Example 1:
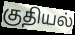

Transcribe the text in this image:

குதியல்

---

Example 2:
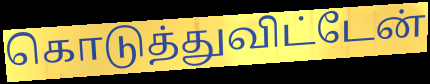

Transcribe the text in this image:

கொடுத்துவிட்டேன்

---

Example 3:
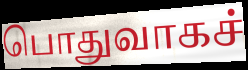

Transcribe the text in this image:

பொதுவாகச்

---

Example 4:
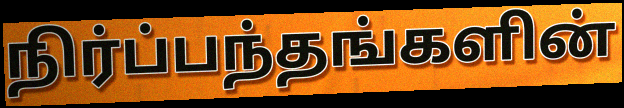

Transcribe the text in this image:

நிர்ப்பந்தங்களின்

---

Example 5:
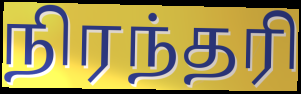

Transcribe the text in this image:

நிரந்தரி